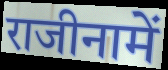
राजीनामें